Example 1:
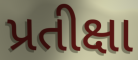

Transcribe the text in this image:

પ્રતીક્ષા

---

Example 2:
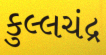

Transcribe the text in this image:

કુલ્લચંદ્ર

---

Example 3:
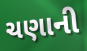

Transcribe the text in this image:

ચણાની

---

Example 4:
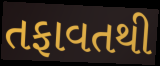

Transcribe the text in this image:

તફાવતથી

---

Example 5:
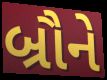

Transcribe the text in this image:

બ્રૌને